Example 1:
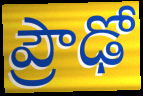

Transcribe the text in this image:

ప్రౌఢో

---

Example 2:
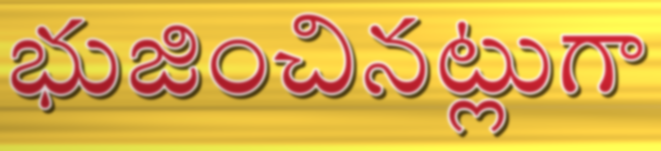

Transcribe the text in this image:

భుజించినట్లుగా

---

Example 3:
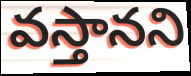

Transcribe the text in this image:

వస్తానని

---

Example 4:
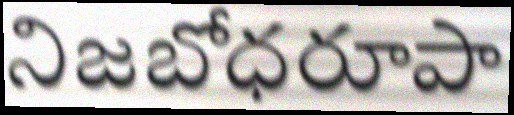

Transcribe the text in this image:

నిజబోధరూపా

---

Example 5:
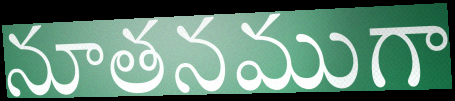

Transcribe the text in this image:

నూతనముగా